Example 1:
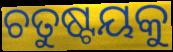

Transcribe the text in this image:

ଚତୁଷ୍ଟୟକୁ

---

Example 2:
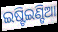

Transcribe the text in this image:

ଇଷ୍ଟିଇଣ୍ଡିଆ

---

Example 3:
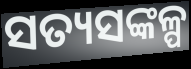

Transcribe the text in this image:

ସତ୍ୟସଙ୍କଳ୍ପ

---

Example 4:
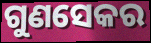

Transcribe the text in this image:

ଗୁଣସେକର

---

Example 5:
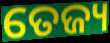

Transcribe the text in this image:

ତେଜ୍ୟ